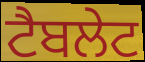
ਟੈਬਲੇਟ